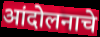
आंदोलनाचे